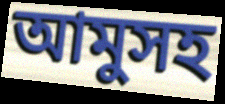
আমুসহ